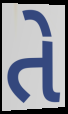
તે